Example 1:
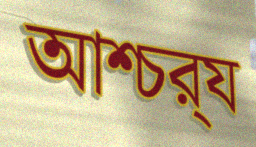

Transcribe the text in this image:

আশ্চর্‍য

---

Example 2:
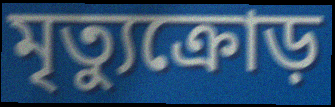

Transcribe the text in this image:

মৃত্যুক্রোড়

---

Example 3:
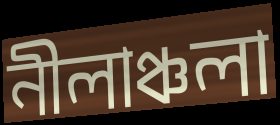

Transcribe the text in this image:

নীলাঞ্চলা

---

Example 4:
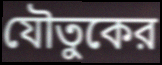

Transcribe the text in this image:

যৌতুকের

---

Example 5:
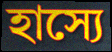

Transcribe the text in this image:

হাস্যে